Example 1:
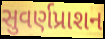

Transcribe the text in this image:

સુવર્ણપ્રાશન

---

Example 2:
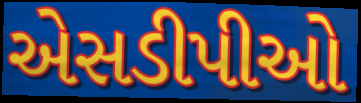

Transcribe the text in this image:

એસડીપીઓ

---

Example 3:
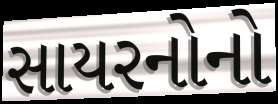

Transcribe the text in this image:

સાયરનોનો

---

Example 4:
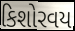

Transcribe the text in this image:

કિશોરવય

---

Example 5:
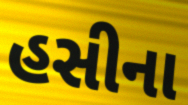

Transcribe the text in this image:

હસીના